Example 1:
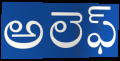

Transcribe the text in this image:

అలెఫ్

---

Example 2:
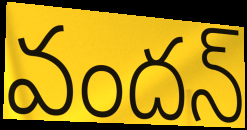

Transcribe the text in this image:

వందన్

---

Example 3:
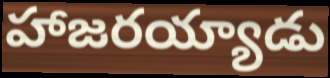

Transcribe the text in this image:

హాజరయ్యాడు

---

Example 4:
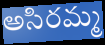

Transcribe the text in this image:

అసిరమ్మ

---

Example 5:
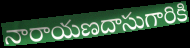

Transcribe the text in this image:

నారాయణదాసుగారికి